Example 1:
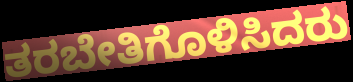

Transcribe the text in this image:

ತರಬೇತಿಗೊಳಿಸಿದರು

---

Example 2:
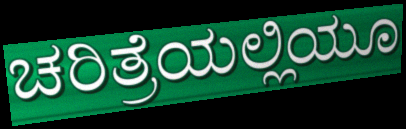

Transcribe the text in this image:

ಚರಿತ್ರೆಯಲ್ಲಿಯೂ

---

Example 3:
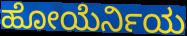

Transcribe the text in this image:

ಹೋಯೆರ್ನಿಯ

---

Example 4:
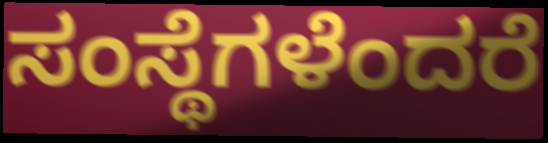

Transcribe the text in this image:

ಸಂಸ್ಥೆಗಳೆಂದರೆ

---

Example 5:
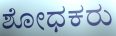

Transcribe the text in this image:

ಶೋಧಕರು